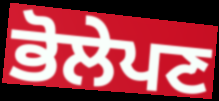
ਭੋਲੇਪਣ